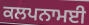
ਕਲਪਨਾਮਈ